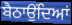
ਬੈਠਾਉਂਦਿਆਂ